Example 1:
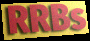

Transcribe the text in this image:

RRBs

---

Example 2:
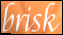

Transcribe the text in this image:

brisk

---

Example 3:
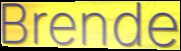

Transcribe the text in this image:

Brende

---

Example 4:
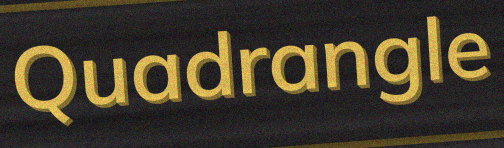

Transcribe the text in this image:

Quadrangle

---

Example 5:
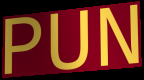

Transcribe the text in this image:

PUN